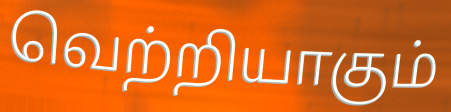
வெற்றியாகும்